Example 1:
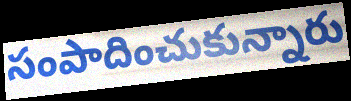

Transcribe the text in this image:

సంపాదించుకున్నారు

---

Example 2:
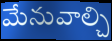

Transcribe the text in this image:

మేనువాల్చి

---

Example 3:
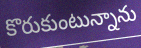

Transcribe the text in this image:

కొరుకుంటున్నాను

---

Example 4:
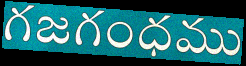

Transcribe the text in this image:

గజగంధము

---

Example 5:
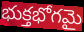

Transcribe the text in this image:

భుక్తభోగమై